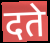
दते